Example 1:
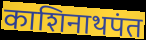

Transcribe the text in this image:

काशिनाथपंत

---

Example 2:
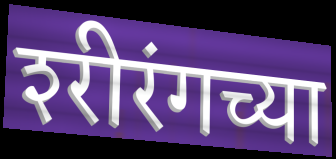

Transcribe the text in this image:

श्रीरंगच्या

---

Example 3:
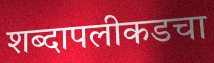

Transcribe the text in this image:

शब्दापलीकडचा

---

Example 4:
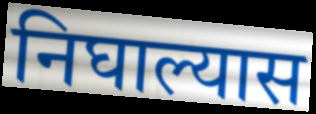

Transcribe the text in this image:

निघाल्यास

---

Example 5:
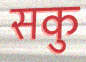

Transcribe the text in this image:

सकु